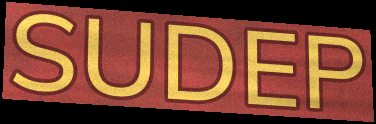
SUDEP